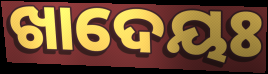
ଖାଦେୟଃ